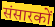
संसारकों